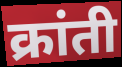
क्रांती